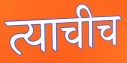
त्याचीच